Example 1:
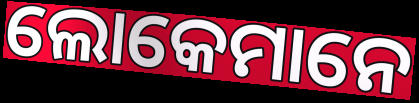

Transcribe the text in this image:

ଲୋକେମାନେ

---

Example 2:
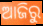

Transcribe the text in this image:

ଆଜିରୁ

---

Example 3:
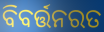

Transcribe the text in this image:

ବିବର୍ତ୍ତନରତ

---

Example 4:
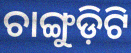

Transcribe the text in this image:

ଚାଙ୍ଗୁଡ଼ିଟି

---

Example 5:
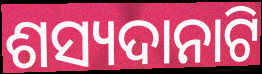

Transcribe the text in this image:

ଶସ୍ୟଦାନାଟି